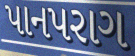
પાનપરાગ